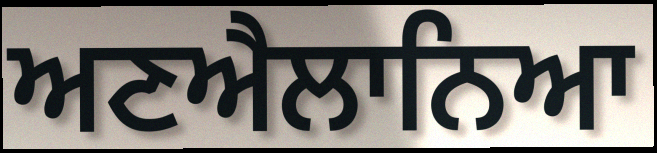
ਅਣਐਲਾਨਿਆ